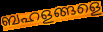
ബഹളങ്ങളെ